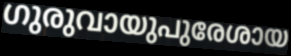
ഗുരുവായുപുരേശായ